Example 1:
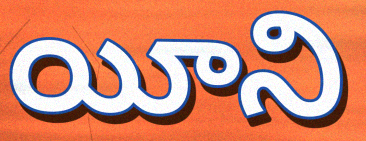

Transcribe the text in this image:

యీని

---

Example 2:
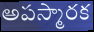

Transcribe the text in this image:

అపస్మారక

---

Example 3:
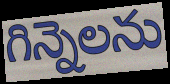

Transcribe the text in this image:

గిన్నెలను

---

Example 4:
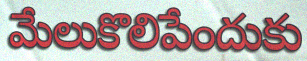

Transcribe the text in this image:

మేలుకొలిపేందుకు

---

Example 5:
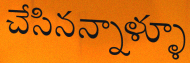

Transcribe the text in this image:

చేసినన్నాళ్ళూ